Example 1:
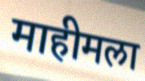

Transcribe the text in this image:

माहीमला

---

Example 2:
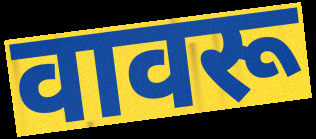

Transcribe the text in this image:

वावरू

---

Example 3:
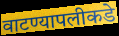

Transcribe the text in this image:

वाटण्यापलीकडे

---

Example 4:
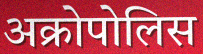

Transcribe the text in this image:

अक्रोपोलिस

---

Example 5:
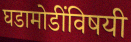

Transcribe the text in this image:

घडामोडींविषयी